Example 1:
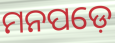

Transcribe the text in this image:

ମନପଡ଼େ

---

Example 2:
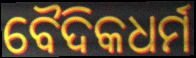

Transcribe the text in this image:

ବୈଦିକଧର୍ମ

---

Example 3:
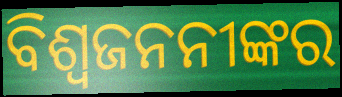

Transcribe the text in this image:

ବିଶ୍ୱଜନନୀଙ୍କର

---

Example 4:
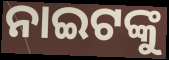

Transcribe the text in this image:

ନାଇଟଙ୍କୁ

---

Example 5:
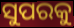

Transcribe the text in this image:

ସୁପରକୁ